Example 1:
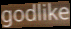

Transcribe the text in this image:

godlike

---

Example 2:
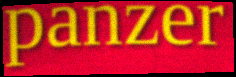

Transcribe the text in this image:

panzer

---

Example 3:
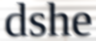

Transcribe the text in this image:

dshe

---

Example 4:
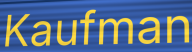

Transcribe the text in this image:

Kaufman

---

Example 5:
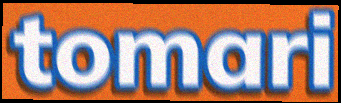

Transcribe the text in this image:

tomari